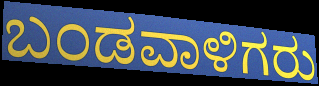
ಬಂಡವಾಳಿಗರು